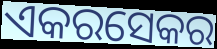
ଏକରସେକର